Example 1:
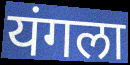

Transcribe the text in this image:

यंगला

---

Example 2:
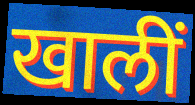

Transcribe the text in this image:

खालीं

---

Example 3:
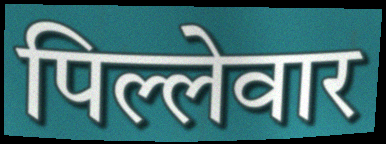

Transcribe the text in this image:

पिल्लेवार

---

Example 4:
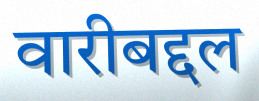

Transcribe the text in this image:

वारीबद्दल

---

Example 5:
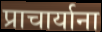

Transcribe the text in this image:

प्राचार्याना